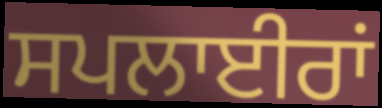
ਸਪਲਾਈਰਾਂ